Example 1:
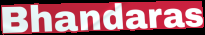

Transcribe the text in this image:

Bhandaras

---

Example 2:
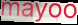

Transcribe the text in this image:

mayoo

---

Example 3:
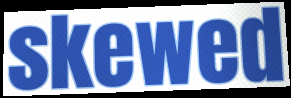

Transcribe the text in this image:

skewed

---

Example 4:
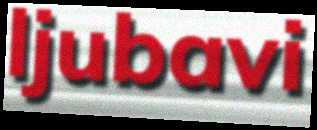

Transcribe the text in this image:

ljubavi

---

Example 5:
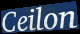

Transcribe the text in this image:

Ceilon